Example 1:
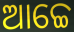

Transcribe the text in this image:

ଆଚ୍ଚେ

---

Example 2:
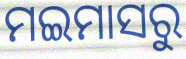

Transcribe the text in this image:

ମଇମାସରୁ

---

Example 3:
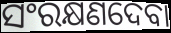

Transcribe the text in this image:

ସଂରକ୍ଷଣଦେବା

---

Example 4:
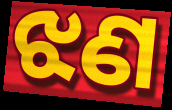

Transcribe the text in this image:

ଝଣ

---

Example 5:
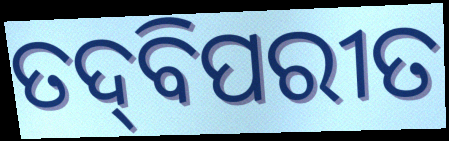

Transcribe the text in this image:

ତଦ୍‍ବିପରୀତ